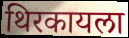
थिरकायला